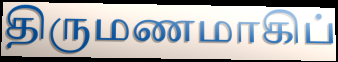
திருமணமாகிப்